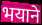
भयाने